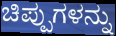
ಚಿಪ್ಪುಗಳನ್ನು